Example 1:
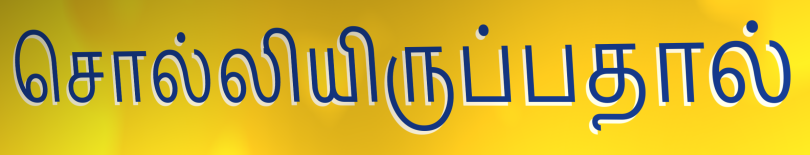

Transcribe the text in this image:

சொல்லியிருப்பதால்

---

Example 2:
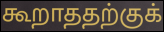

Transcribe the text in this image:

கூறாததற்குக்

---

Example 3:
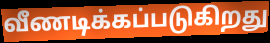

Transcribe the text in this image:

வீணடிக்கப்படுகிறது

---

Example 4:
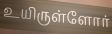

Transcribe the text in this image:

உயிருள்ளோர்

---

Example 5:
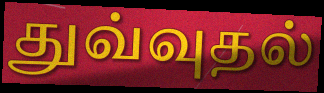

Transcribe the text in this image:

துவ்வுதல்